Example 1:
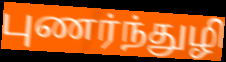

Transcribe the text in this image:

புணர்ந்துழி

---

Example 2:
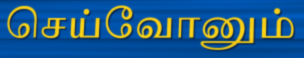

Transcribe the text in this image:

செய்வோனும்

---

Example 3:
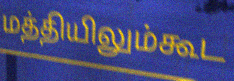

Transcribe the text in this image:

மத்தியிலும்கூட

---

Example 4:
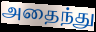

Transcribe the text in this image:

அதைந்து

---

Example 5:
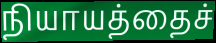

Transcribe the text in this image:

நியாயத்தைச்